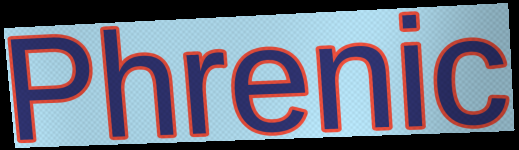
Phrenic